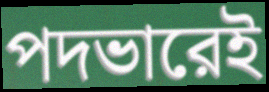
পদভারেই